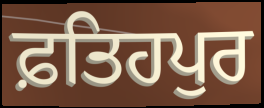
ਫ਼ਤਿਹਪੁਰ